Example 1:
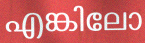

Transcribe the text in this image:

എങ്കിലോ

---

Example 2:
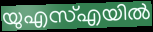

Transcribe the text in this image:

യുഎസ്എയിൽ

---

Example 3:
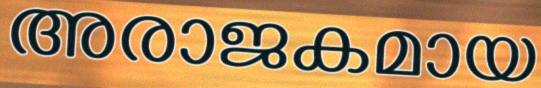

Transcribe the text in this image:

അരാജകമായ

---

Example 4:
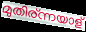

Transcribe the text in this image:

മുതിര്ന്നയാള്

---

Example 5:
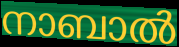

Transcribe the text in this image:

നാബാൽ